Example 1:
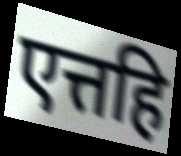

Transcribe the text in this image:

एत्तहि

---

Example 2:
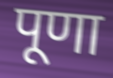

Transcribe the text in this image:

पूणा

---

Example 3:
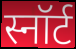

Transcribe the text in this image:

स्नॉर्ट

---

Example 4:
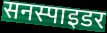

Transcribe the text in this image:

सनस्पाइडर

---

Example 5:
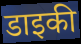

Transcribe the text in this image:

डाइकी